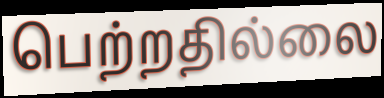
பெற்றதில்லை